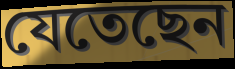
যেতেছেন